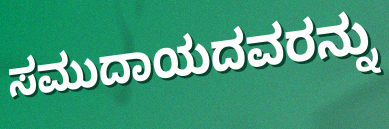
ಸಮುದಾಯದವರನ್ನು